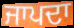
ਜਾਪਦਾ